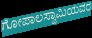
ಗೋಪಾಲಸ್ವಾಮಿಯವರ